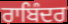
ਰਾਬਿੰਦਰ